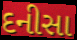
દનીસા